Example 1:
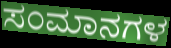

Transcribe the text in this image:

ಸಂಮಾನಗಳ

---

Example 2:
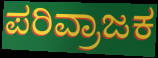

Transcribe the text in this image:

ಪರಿವ್ರಾಜಕ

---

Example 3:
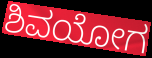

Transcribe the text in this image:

ಶಿವಯೋಗ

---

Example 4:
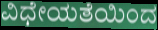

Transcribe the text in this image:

ವಿಧೇಯತೆಯಿಂದ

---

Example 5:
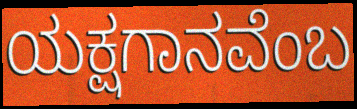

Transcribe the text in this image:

ಯಕ್ಷಗಾನವೆಂಬ